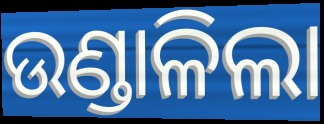
ଉଣ୍ଡାଳିଲା